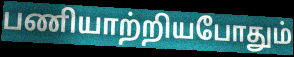
பணியாற்றியபோதும்